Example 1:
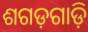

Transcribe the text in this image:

ଶଗଡ଼ଗାଡ଼ି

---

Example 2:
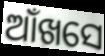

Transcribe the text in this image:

ଆଁଖସେ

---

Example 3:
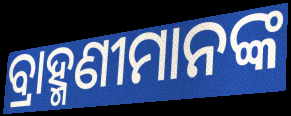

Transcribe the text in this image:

ବ୍ରାହ୍ମଣୀମାନଙ୍କ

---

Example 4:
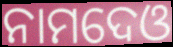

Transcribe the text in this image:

ନାମଦେଓ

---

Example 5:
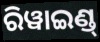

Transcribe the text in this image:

ରିୱାଇଣ୍ଡ୍